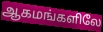
ஆகமங்களிலே